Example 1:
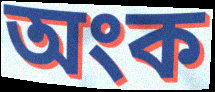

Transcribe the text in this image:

অংক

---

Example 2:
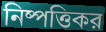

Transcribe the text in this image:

নিষ্পত্তিকর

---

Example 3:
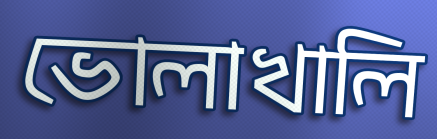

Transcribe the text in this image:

ভোলাখালি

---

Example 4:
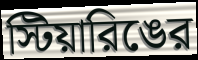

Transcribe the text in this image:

স্টিয়ারিঙের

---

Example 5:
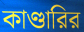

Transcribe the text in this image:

কাণ্ডারির